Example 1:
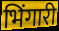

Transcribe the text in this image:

भिंगारी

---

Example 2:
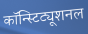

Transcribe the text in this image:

कॉन्स्टिट्यूशनल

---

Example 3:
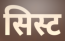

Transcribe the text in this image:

सिस्ट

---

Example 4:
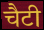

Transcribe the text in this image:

चैटी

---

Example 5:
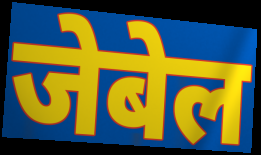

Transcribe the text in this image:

जेबेल